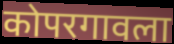
कोपरगावला